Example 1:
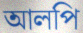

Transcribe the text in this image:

আলপি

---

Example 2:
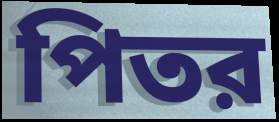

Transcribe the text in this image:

পিতর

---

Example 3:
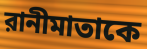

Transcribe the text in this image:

রানীমাতাকে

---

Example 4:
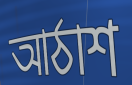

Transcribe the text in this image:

আঠাশ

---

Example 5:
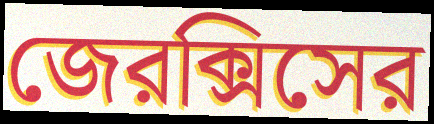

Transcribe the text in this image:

জেরক্সিসের